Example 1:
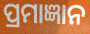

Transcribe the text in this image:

ପ୍ରମାଜ୍ଞାନ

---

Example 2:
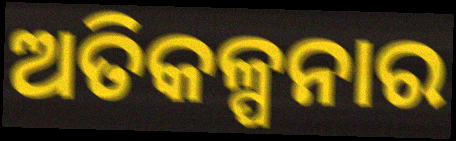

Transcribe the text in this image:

ଅତିକଳ୍ପନାର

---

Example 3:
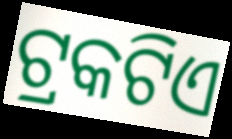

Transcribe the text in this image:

ଟ୍ରକଟିଏ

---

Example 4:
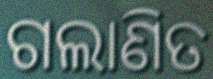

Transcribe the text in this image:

ଗଲାଣିତ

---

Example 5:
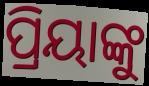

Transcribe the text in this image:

ପ୍ରିୟାଙ୍କୁ